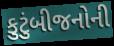
કુટુંબીજનોની